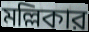
মল্লিকার